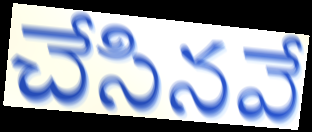
చేసినవే